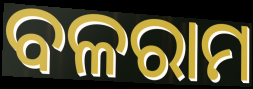
ବଳରାମ